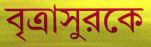
বৃত্রাসুরকে